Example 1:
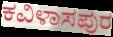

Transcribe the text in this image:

ಕವಿಳಾಸಪುರ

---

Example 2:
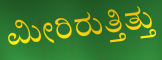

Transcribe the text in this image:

ಮೀರಿರುತ್ತಿತ್ತು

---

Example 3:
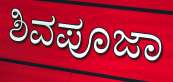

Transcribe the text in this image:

ಶಿವಪೂಜಾ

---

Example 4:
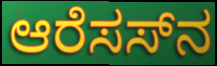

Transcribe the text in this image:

ಆರೆಸಸ್‌ನ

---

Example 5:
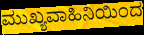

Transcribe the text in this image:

ಮುಖ್ಯವಾಹಿನಿಯಿಂದ